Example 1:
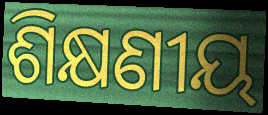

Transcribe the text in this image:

ଶିକ୍ଷଣୀୟ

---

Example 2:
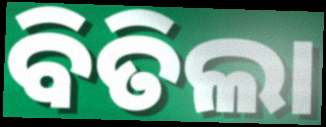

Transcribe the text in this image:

ବିତିଲା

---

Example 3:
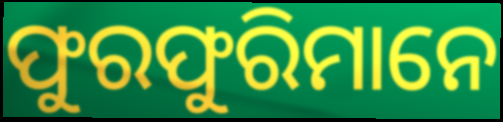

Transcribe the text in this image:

ଫୁରଫୁରିମାନେ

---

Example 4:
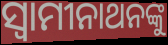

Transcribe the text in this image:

ସ୍ୱାମୀନାଥନଙ୍କୁ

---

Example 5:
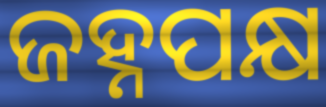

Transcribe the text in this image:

ଜହ୍ନପକ୍ଷ